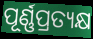
ପୂର୍ଣ୍ଣପ୍ରତ୍ୟକ୍ଷ